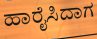
ಹಾರೈಸಿದಾಗ